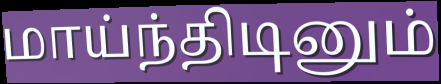
மாய்ந்திடினும்